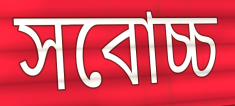
সবোচ্চ